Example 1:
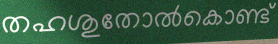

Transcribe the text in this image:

തഹശുതോൽകൊണ്ട്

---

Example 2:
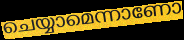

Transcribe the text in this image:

ചെയ്യാമെന്നാണോ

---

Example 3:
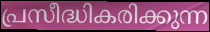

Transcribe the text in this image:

പ്രസീദ്ധികരിക്കുന്ന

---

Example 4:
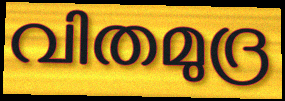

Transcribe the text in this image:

വിതമുദ്ര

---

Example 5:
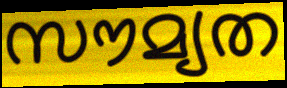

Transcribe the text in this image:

സൗമ്യത